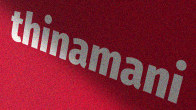
thinamani